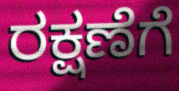
ರಕ್ಷಣೆಗೆ